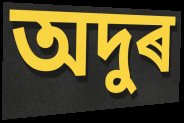
অদুৰ